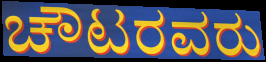
ಚೌಟರವರು